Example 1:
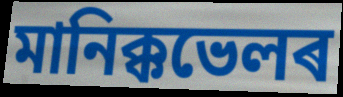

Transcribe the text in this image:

মানিক্কভেলৰ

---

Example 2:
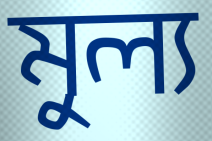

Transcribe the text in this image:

মুল্য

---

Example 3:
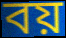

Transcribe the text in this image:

বয়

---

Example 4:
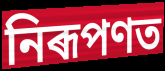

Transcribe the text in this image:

নিৰূপণত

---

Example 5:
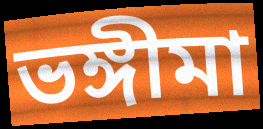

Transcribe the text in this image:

ভঙ্গীমা